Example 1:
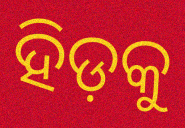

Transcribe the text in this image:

ହିଡ଼କୁ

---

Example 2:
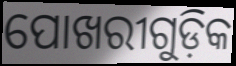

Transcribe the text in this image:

ପୋଖରୀଗୁଡ଼ିକ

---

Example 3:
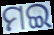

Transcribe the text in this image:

ମଇ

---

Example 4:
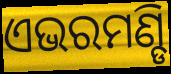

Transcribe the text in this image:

ଏଭରମଣ୍ଡି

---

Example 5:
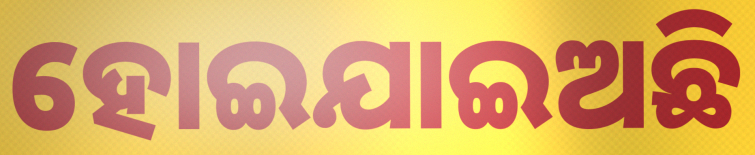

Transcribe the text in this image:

ହୋଇଯାଇଅଛି